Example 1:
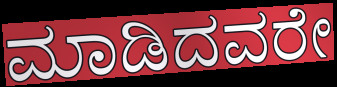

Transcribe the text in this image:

ಮಾಡಿದವರೇ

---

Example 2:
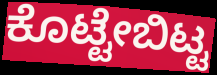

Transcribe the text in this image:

ಕೊಟ್ಟೇಬಿಟ್ಟ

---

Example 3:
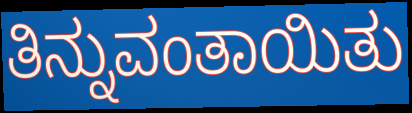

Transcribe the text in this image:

ತಿನ್ನುವಂತಾಯಿತು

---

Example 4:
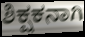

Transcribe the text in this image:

ಶಿಕ್ಷಕನಾಗಿ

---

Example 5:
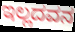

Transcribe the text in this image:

ಇಲ್ಲದವನ